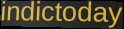
indictoday